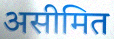
असीमित